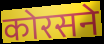
कोरसने